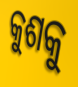
କୁଶକୁ